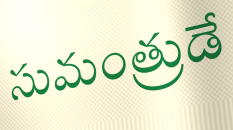
సుమంత్రుడే